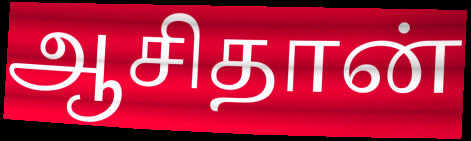
ஆசிதான்